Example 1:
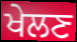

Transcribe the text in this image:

ਖੇਲਣ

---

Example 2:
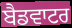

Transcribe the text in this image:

ਬੈਡਵਾਟਰ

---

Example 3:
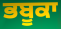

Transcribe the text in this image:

ਭਬੂਕਾ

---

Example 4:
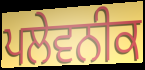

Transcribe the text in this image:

ਪਲੇਵਨੀਕ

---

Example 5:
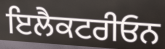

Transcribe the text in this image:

ਇਲੈਕਟਰੀਓਨ